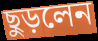
ছুড়লেন